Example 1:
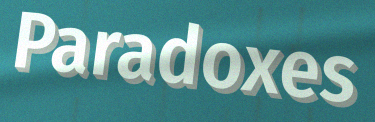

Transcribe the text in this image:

Paradoxes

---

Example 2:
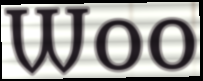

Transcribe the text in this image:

Woo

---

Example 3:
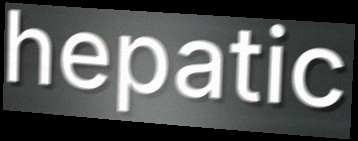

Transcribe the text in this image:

hepatic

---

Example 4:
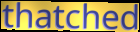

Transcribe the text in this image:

thatched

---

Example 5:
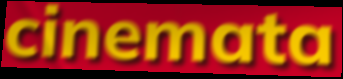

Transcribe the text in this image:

cinemata